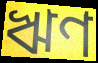
ঋণ